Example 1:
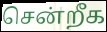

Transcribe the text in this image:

சென்றீக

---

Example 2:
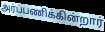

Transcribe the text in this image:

அர்ப்பணிக்கின்றார்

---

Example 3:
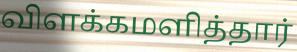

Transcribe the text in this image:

விளக்கமளித்தார்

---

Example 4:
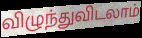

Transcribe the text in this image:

விழுந்துவிடலாம்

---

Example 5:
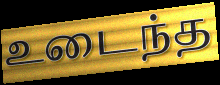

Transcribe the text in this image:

உடைந்த